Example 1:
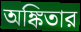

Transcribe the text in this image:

অঙ্কিতার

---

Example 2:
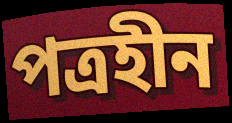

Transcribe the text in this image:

পত্রহীন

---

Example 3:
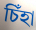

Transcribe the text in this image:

চিঁহা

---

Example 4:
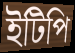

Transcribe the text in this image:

ইটিপি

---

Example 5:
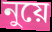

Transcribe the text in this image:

নুয়ে